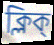
ক্লিক্